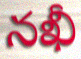
నఖీ